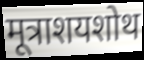
मूत्राशयशोथ